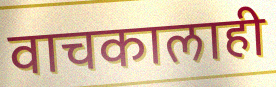
वाचकालाही